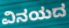
ವಿನಯದ